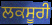
ਲਕਸੂਰੀ